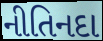
નીતિનદા